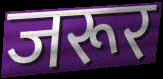
जरूर